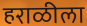
हराळीला